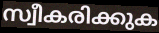
സ്വീകരിക്കുക